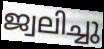
ജ്വലിച്ചു